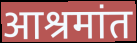
आश्रमांत